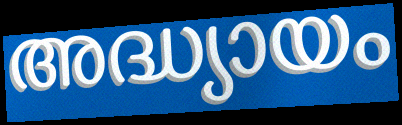
അദ്ധ്യായം